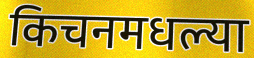
किचनमधल्या